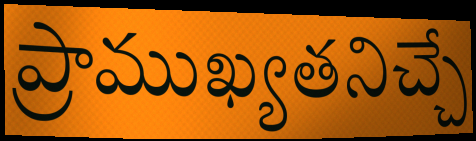
ప్రాముఖ్యతనిచ్చే